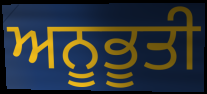
ਅਨੂਭੂਤੀ